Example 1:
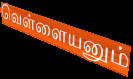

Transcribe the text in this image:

வெள்ளையனும்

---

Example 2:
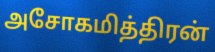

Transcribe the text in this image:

அசோகமித்திரன்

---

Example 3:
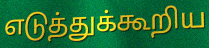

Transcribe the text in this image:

எடுத்துக்கூறிய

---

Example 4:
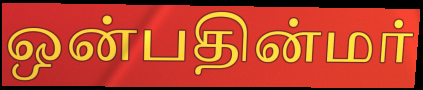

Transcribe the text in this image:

ஒன்பதின்மர்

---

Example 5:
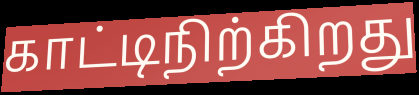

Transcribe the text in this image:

காட்டிநிற்கிறது